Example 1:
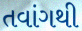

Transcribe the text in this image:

તવાંગથી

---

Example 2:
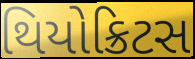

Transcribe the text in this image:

થિયોક્રિટસ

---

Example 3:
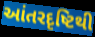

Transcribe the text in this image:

આંતરદૃષ્ટિથી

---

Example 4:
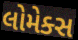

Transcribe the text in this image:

લોમેક્સ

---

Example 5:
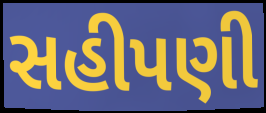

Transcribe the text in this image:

સહીપણી